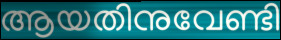
ആയതിനുവേണ്ടി